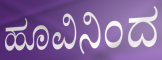
ಹೂವಿನಿಂದ